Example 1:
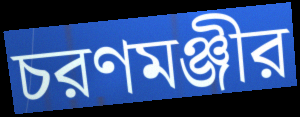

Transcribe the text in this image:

চরণমঞ্জীর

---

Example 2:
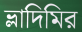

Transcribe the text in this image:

ভ্লাদিমির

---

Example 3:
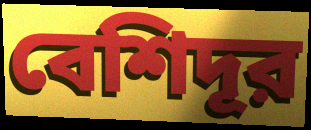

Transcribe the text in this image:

বেশিদূর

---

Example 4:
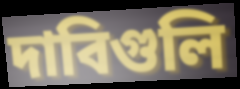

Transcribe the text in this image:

দাবিগুলি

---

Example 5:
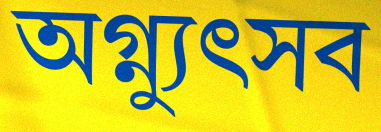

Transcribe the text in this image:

অগ্ন্যুৎসব